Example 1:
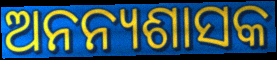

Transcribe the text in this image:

ଅନନ୍ୟଶାସକ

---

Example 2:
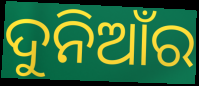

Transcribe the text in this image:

ଦୁନିଆଁର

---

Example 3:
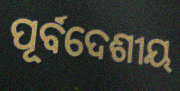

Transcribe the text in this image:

ପୂର୍ବଦେଶୀୟ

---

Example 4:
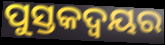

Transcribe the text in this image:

ପୁସ୍ତକଦ୍ୱୟର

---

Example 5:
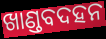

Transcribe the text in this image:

ଖାଣ୍ଡବଦହନ